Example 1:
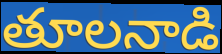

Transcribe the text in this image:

తూలనాడి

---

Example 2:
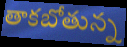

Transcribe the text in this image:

తాకబోతున్న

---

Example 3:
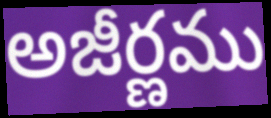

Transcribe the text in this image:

అజీర్ణము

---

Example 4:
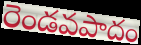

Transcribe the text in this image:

రెండవపాదం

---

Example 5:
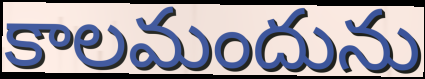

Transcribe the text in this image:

కాలమందును